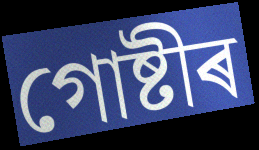
গোষ্টীৰ